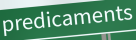
predicaments